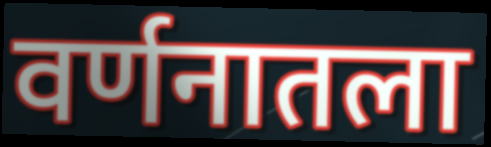
वर्णनातला